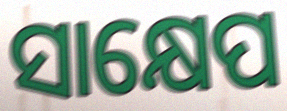
ସାକ୍ଷେପ